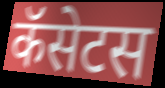
कॅसेटस